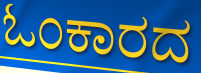
ಓಂಕಾರದ